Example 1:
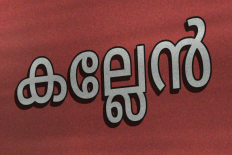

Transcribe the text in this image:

കല്ലേൻ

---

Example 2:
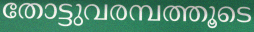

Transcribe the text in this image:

തോട്ടുവരമ്പത്തൂടെ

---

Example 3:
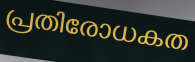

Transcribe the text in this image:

പ്രതിരോധകത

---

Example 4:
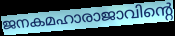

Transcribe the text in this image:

ജനകമഹാരാജാവിന്റെ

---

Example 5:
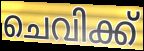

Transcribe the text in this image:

ചെവിക്ക്